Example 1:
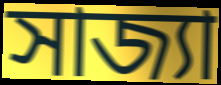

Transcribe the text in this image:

সাজ্যা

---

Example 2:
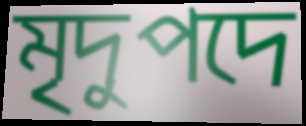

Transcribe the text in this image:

মৃদুপদে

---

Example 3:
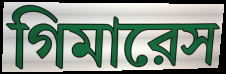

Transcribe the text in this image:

গিমারেস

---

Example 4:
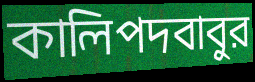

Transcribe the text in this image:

কালিপদবাবুর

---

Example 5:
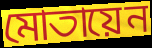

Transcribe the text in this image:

মোতায়েন